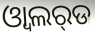
ଓ୍ବାଲର୍‌ଡ